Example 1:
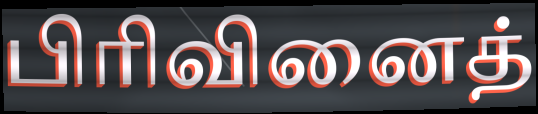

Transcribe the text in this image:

பிரிவினைத்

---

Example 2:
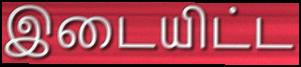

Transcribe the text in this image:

இடையிட்ட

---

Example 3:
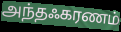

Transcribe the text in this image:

அந்தஃகரணம்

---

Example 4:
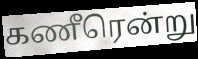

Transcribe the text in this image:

கணீரென்று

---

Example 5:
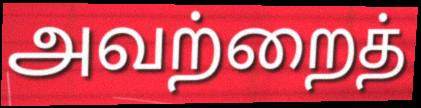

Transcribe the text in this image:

அவற்றைத்